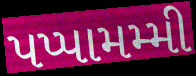
પપ્પામમ્મી